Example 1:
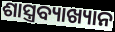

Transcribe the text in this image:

ଶାସ୍ତ୍ରବ୍ୟାଖ୍ୟାନ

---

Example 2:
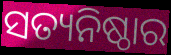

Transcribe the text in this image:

ସତ୍ୟନିଷ୍ଠାର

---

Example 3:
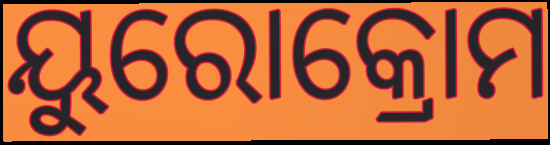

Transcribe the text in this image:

ୟୁରୋକ୍ରୋମ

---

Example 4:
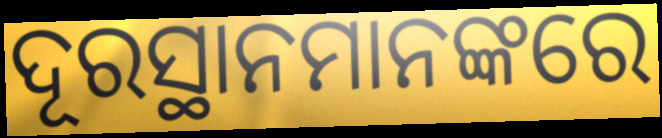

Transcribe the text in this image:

ଦୂରସ୍ଥାନମାନଙ୍କରେ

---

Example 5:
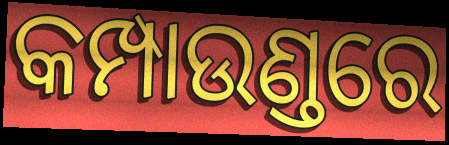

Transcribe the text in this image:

କମ୍ପାଉଣ୍ଡରେ